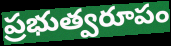
ప్రభుత్వరూపం